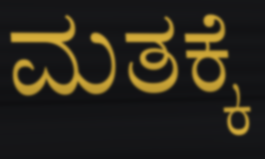
ಮತಕ್ಕೆ